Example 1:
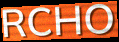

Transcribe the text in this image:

RCHO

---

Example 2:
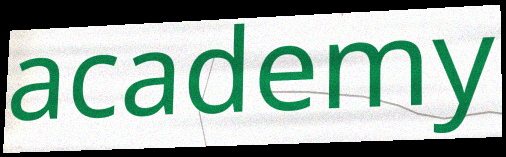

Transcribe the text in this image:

academy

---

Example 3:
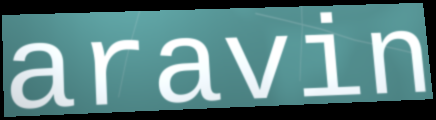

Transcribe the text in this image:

aravin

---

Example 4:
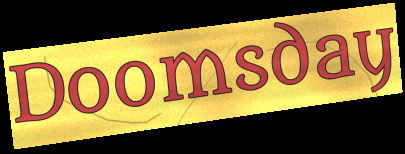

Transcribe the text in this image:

Doomsday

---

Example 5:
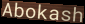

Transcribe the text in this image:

Abokash